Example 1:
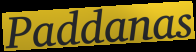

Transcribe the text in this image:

Paddanas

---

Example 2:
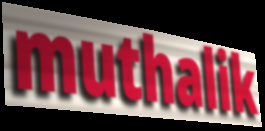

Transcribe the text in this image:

muthalik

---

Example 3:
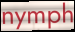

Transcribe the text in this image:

nymph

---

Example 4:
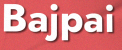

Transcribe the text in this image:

Bajpai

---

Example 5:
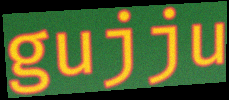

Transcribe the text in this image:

gujju